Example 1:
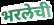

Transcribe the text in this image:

भरलेची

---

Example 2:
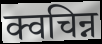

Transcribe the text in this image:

क्वचिन्न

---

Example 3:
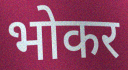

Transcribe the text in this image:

भोकर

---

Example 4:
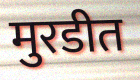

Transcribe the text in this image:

मुरडीत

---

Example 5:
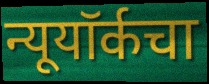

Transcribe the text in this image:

न्यूयॉर्कचा